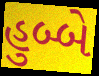
હુબ્બે